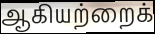
ஆகியற்றைக்